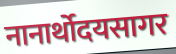
नानार्थोदयसागर